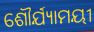
ଶୌର୍ଯ୍ୟାମୟୀ